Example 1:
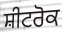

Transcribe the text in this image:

ਸ਼ੀਟਰੋਕ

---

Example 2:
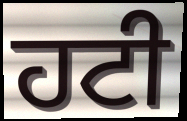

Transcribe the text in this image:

ਹਟੀ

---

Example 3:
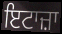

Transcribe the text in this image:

ਇਟਾਜ਼ਾ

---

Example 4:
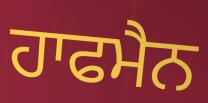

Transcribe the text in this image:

ਹਾਫਮੈਨ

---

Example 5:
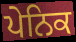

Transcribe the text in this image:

ਪੇਨਿਕ